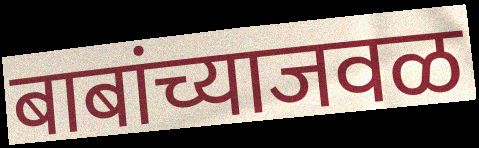
बाबांच्याजवळ